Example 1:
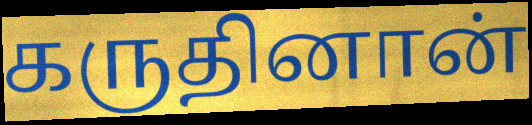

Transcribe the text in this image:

கருதினான்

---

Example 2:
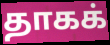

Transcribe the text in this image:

தாகக்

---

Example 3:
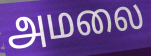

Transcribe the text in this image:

அமலை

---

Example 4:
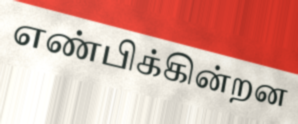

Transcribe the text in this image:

எண்பிக்கின்றன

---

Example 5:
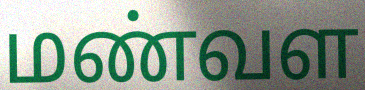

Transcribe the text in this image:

மண்வள